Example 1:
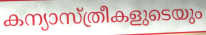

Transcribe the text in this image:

കന്യാസ്ത്രീകളുടെയും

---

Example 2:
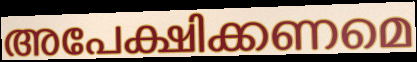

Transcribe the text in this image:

അപേക്ഷിക്കണമെ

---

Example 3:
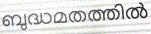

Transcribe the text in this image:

ബുദ്ധമതത്തിൽ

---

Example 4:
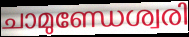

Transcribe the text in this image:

ചാമുണ്ഡേശ്വരി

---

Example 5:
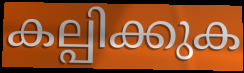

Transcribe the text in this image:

കല്പിക്കുക